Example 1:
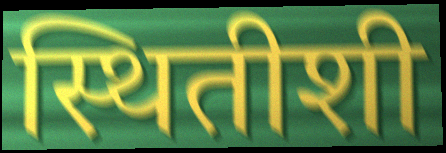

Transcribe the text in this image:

स्थितीशी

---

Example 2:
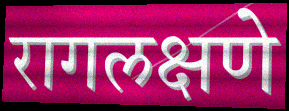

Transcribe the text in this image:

रागलक्षणे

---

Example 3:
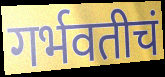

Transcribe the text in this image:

गर्भवतीचं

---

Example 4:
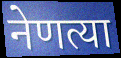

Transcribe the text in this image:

नेणत्या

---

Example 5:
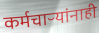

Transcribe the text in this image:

कर्मचाऱ्यांनाही